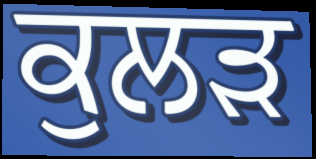
ਕੁਲੜ